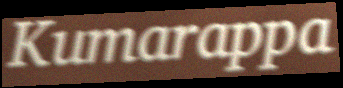
Kumarappa